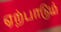
ஏற்பாடும்